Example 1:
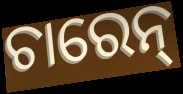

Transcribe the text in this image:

ଚାରେନ୍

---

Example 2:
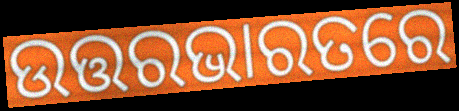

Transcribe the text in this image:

ଉତ୍ତରଭାରତରେ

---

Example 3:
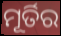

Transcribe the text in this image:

ମୂର୍ତିର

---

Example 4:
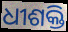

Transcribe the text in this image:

ଧୀଶକ୍ତି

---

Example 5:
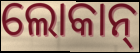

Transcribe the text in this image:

ଲୋକାନ୍